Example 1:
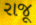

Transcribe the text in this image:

રાજૂ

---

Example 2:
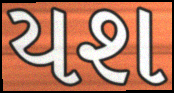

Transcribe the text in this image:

યશ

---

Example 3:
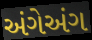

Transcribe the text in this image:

અંગેઅંગ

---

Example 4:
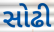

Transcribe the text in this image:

સોઢી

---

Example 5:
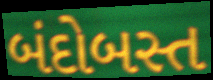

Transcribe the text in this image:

બંદોબસ્ત